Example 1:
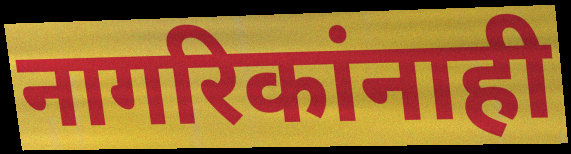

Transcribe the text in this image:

नागरिकांनाही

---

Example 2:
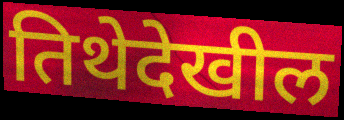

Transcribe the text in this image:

तिथेदेखील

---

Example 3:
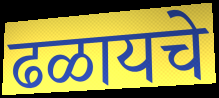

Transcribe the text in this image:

ढळायचे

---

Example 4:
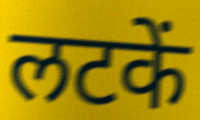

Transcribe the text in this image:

लटकें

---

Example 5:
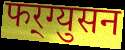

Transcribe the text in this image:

फर्ग्युसन